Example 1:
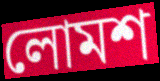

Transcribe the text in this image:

লোমশ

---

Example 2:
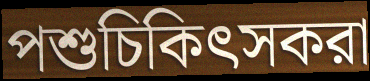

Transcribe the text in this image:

পশুচিকিৎসকরা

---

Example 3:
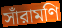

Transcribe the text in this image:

সাঁরামণি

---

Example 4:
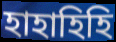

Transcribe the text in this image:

হাহাহিহি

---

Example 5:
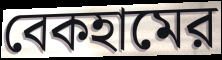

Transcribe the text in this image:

বেকহামের